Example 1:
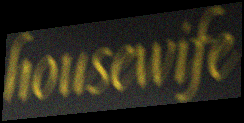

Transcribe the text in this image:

housewife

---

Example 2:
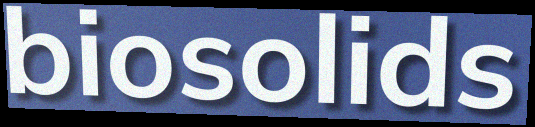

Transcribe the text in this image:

biosolids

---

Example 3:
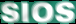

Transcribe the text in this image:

SIOS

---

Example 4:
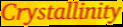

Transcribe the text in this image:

Crystallinity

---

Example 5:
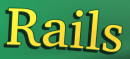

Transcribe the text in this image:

Rails